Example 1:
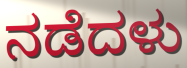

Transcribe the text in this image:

ನಡೆದಳು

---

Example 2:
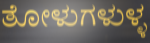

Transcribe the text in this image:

ತೋಳುಗಳುಳ್ಳ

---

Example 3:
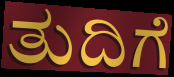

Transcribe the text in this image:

ತುದಿಗೆ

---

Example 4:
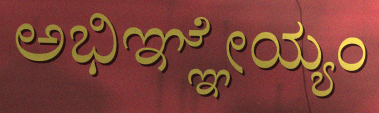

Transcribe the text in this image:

ಅಭಿಞ್ಞೇಯ್ಯಂ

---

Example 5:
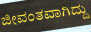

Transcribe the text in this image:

ಜೀವಂತವಾಗಿದ್ದು